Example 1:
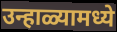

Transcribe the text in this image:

उन्हाळ्यामध्ये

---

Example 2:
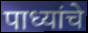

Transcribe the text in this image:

पाध्यांचे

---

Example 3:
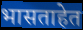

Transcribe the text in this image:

भासताहेत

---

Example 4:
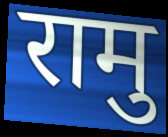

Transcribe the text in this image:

रामु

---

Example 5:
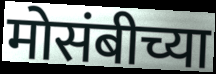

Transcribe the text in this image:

मोसंबीच्या